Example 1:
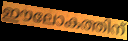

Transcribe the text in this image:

ഈലോകത്തിന്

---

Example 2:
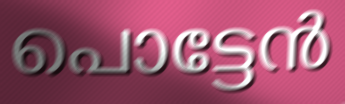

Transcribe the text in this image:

പൊട്ടേൻ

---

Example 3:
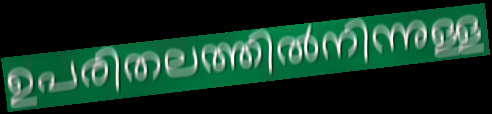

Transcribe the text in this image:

ഉപരിതലത്തിൽനിന്നുള്ള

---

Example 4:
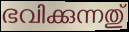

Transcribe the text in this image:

ഭവിക്കുന്നതു്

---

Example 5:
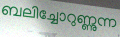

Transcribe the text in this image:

ബലിച്ചോറുണ്ണുന്ന